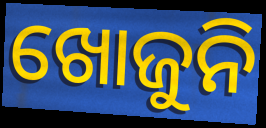
ଖୋଜୁନି